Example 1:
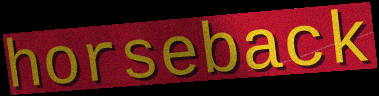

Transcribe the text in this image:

horseback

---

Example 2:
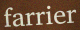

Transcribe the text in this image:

farrier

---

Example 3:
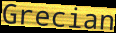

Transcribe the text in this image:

Grecian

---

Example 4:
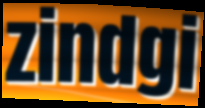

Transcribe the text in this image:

zindgi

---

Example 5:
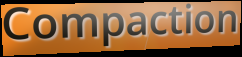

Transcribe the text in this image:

Compaction